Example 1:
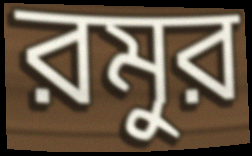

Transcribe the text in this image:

রমুর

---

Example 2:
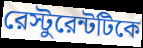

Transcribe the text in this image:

রেস্টুরেন্টটিকে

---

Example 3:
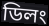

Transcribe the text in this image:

ডিলং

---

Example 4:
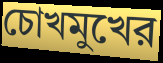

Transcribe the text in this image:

চোখমুখের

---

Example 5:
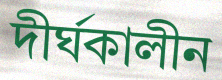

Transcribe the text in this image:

দীর্ঘকালীন